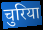
चुरिया